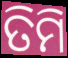
ତିମି